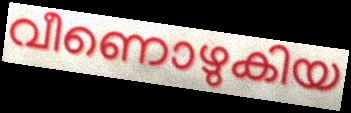
വീണൊഴുകിയ